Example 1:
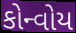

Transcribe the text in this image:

કોન્વોય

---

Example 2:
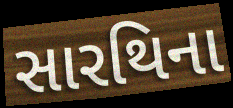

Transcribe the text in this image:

સારથિના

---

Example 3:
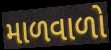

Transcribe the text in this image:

માળવાળો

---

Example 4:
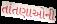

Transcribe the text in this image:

તાંતણાઓની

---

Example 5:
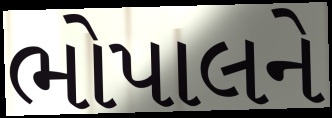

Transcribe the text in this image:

ભોપાલને